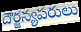
దౌర్జన్యపరులు